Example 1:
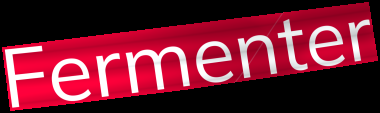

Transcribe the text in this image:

Fermenter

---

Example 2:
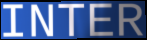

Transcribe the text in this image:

INTER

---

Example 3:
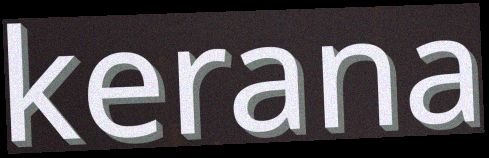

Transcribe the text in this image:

kerana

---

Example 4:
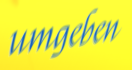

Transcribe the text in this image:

umgeben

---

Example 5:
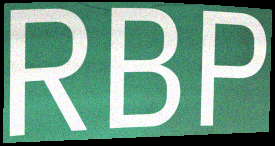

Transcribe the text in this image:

RBP